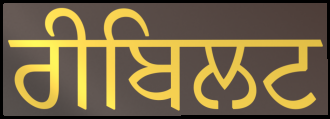
ਰੀਬਿਲਟ